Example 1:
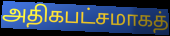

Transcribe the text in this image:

அதிகபட்சமாகத்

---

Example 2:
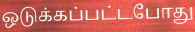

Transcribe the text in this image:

ஒடுக்கப்பட்டபோது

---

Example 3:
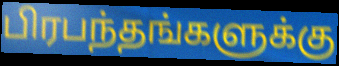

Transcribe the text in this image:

பிரபந்தங்களுக்கு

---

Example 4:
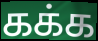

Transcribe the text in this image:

கக்க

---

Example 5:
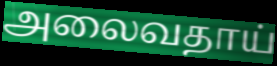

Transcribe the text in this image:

அலைவதாய்